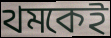
থমকেই